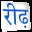
रीढ़